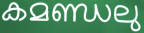
കമണ്ഡലു